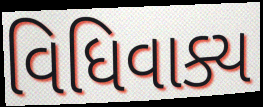
વિધિવાક્ય